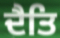
ਦੈਤਿ